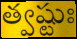
త్వష్టుః